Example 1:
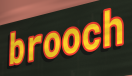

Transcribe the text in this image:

brooch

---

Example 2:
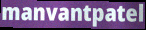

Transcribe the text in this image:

manvantpatel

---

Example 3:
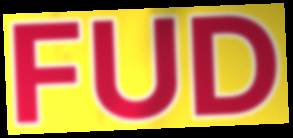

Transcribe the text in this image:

FUD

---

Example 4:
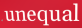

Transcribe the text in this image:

unequal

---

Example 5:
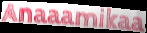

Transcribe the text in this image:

Anaaamikaa